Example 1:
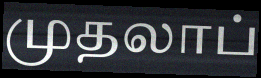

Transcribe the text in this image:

முதலாப்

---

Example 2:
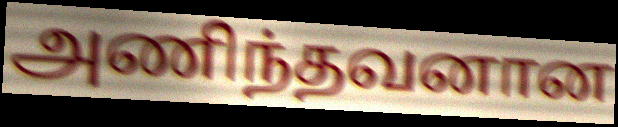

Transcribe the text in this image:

அணிந்தவனான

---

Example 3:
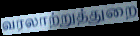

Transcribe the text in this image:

வரலாற்றுத்துறை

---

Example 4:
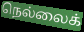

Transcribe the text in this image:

நெல்லைக்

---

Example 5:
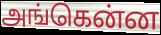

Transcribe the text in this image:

அங்கென்ன